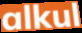
alkul